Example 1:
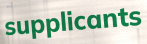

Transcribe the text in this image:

supplicants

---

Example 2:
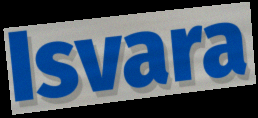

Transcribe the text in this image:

Isvara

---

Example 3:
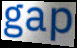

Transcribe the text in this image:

gap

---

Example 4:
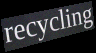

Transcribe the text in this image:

recycling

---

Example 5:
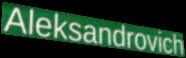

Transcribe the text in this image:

Aleksandrovich